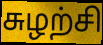
சுழற்சி